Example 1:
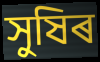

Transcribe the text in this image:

সুষিৰ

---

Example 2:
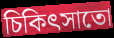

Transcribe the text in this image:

চিকিৎসাতো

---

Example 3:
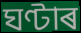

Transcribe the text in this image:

ঘণ্টাৰ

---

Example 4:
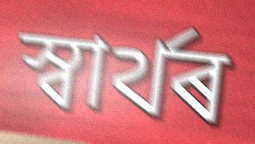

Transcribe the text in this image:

স্বাৰ্থৰ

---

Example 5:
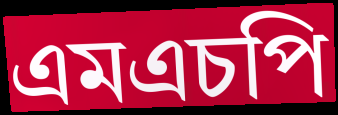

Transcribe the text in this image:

এমএচপি